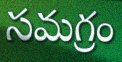
సమగ్రం